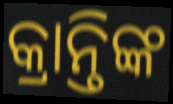
କ୍ରାନ୍ତିଙ୍କ